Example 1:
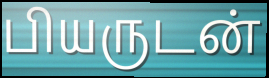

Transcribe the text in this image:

பியருடன்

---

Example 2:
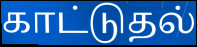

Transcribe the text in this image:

காட்டுதல்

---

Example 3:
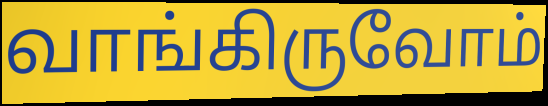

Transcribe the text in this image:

வாங்கிருவோம்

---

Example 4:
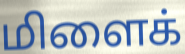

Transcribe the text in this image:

மிளைக்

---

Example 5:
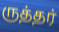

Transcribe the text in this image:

ருத்தர்